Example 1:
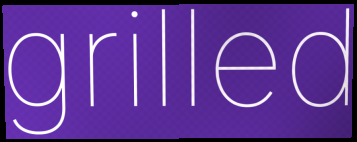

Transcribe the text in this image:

grilled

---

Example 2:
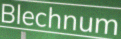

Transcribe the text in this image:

Blechnum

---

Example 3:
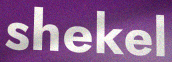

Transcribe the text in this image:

shekel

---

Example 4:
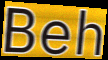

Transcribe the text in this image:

Beh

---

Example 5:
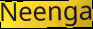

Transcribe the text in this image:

Neenga